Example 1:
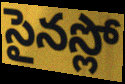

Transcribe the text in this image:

సైనస్లో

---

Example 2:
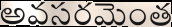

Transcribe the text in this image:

అవసరమెంత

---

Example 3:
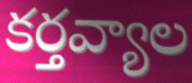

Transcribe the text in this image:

కర్తవ్యాల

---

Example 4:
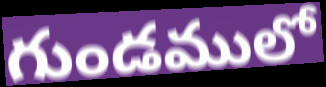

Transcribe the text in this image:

గుండములో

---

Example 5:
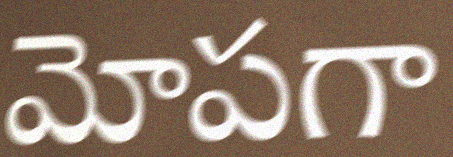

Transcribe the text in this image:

మోపగా